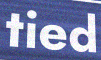
tied